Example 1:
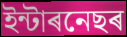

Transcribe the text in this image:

ইন্টাৰনেছৰ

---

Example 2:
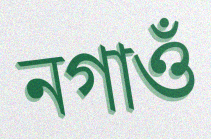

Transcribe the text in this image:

নগাওঁ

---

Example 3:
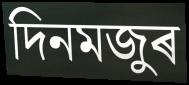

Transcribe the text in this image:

দিনমজুৰ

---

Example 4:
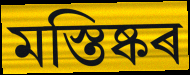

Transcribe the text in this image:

মস্তিষ্কৰ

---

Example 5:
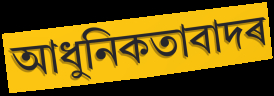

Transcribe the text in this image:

আধুনিকতাবাদৰ